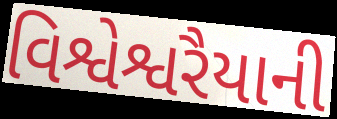
વિશ્વેશ્વરૈયાની